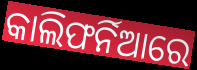
କାଲିଫର୍ନିଆରେ